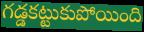
గడ్డకట్టుకుపోయింది